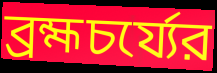
ব্রহ্মচর্য্যের